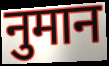
नुमान